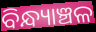
ବିନ୍ଧ୍ୟାଞ୍ଚଳ